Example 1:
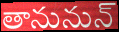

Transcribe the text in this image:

తానునున్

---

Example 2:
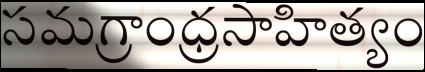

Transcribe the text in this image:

సమగ్రాంధ్రసాహిత్యం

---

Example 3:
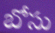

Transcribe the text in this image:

బోసు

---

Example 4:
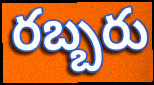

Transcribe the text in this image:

రబ్బరు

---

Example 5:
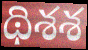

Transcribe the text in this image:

థిశశ